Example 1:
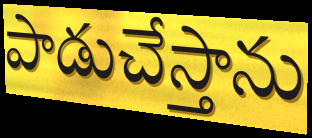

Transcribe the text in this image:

పాడుచేస్తాను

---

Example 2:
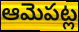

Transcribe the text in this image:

ఆమెపట్ల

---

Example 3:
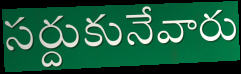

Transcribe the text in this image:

సర్దుకునేవారు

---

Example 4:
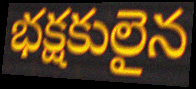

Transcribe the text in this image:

భక్షకులైన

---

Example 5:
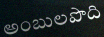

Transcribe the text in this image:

అంబులపొది